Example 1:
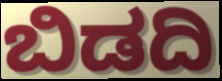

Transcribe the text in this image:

ಬಿಡದಿ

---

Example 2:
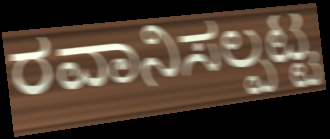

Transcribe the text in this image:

ರವಾನಿಸಲ್ಪಟ್ಟ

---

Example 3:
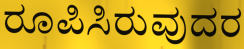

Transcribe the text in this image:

ರೂಪಿಸಿರುವುದರ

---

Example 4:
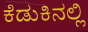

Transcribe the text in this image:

ಕೆಡುಕಿನಲ್ಲಿ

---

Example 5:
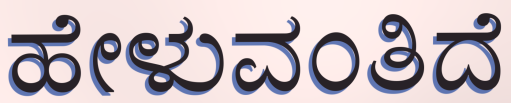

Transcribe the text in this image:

ಹೇಳುವಂತಿದೆ